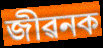
জীৱনক